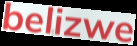
belizwe